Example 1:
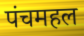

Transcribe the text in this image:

पंचमहल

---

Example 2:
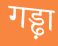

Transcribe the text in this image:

गड्ढ़ा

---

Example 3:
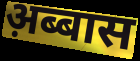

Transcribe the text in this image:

अ़ब्बास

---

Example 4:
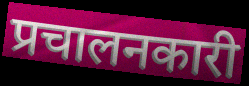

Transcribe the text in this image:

प्रचालनकारी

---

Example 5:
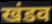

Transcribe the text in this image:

खंडव